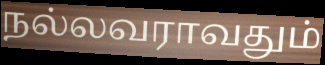
நல்லவராவதும்